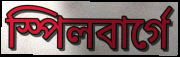
স্পিলবাৰ্গে